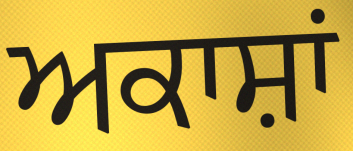
ਅਕਾਸ਼ਾਂ